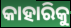
କାହାରିକୁ